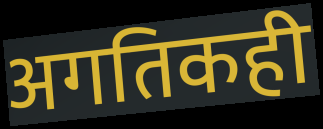
अगतिकही